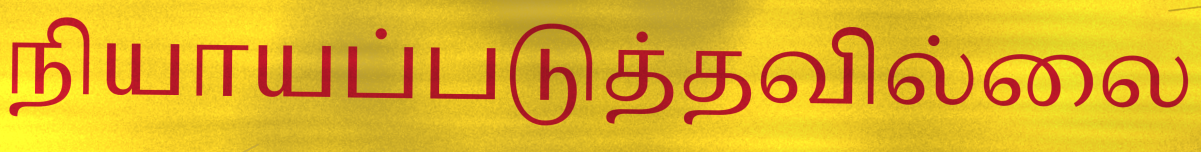
நியாயப்படுத்தவில்லை